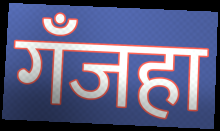
गँजहा